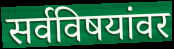
सर्वविषयांवर